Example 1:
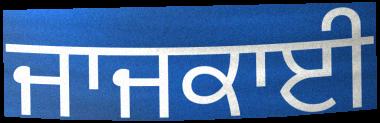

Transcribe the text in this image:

ਜਾਜਕਾਈ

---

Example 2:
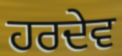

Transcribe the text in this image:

ਹਰਦੇਵ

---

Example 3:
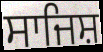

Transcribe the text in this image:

ਸਾਜਿਸ਼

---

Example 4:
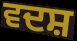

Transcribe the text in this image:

ਵਦਸ਼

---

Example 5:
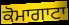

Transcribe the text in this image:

ਕੋਮਾਗਾਟਾ